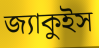
জ্যাকুইস